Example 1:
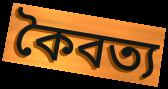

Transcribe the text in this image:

কৈবত্য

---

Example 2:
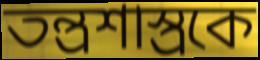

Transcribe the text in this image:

তন্ত্রশাস্ত্রকে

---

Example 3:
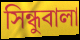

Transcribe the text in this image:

সিন্ধুবালা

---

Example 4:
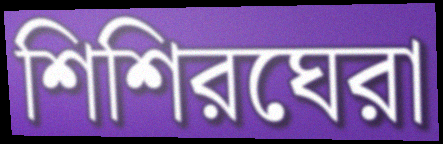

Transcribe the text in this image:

শিশিরঘেরা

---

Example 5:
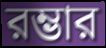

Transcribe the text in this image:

রম্ভার